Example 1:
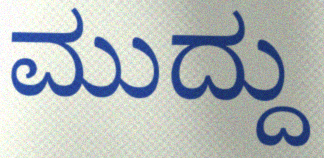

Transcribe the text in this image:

ಮುದ್ದು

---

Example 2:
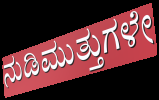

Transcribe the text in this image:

ನುಡಿಮುತ್ತುಗಳೇ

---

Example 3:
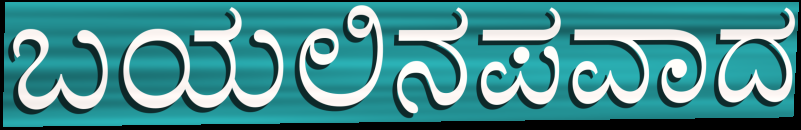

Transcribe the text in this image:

ಬಯಲಿನಪವಾದ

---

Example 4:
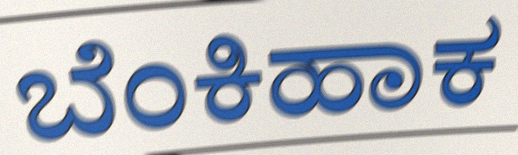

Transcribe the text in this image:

ಬೆಂಕಿಹಾಕ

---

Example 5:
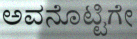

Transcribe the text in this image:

ಅವನೊಟ್ಟಿಗೇ